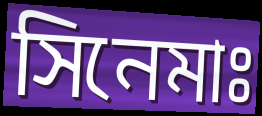
সিনেমাঃ